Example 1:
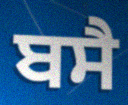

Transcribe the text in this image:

ਬਸੈ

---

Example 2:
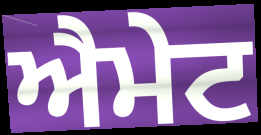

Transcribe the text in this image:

ਐਮੇਟ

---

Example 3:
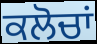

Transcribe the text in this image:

ਕਲੋਚਾਂ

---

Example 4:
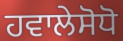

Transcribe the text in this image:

ਹਵਾਲੇਸੋਧੋ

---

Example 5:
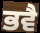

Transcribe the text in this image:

ਭਵੈ